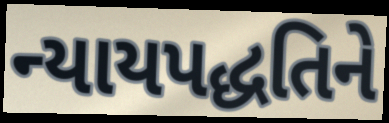
ન્યાયપદ્ધતિને